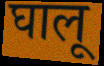
घालू